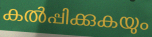
കൽപ്പിക്കുകയും